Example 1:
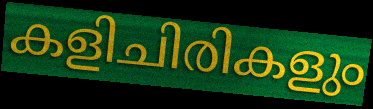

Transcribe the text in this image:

കളിചിരികളും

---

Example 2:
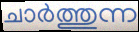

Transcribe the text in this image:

ചാർത്തുന്ന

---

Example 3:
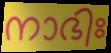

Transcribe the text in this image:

നാഭിഃ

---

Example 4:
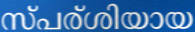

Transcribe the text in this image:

സ്പര്ശിയായ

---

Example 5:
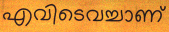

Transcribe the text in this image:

എവിടെവച്ചാണ്